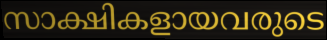
സാക്ഷികളായവരുടെ